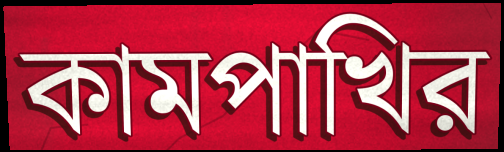
কামপাখির